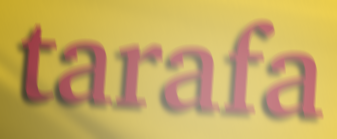
tarafa